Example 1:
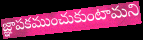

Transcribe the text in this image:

జ్ఞాపకముంచుకుంటామని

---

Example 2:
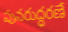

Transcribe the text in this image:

పునరుద్ధరణే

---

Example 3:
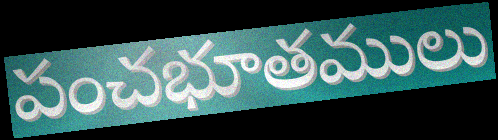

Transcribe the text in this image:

పంచభూతములు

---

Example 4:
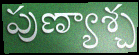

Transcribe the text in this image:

పుణ్యాశ్చ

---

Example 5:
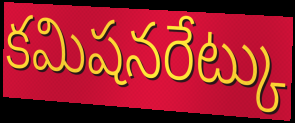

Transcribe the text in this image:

కమిషనరేట్కు